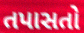
તપાસતો